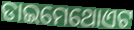
ଡାଇମେଥୋଏଟ